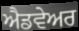
ਐਡਵੇਅਰ